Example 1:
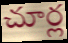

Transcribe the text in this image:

చూర్ల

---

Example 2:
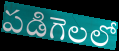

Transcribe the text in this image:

పడిగెలలో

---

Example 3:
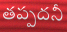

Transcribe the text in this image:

తప్పదనీ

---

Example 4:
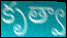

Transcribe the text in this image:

కృత్వా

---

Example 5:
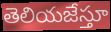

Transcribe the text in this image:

తెలియజేస్తూ